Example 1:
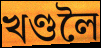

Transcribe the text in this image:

খণ্ডলৈ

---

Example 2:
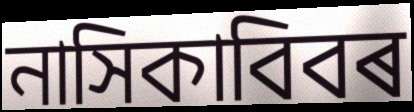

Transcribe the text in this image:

নাসিকাবিবৰ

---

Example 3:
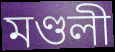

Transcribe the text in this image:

মণ্ডলী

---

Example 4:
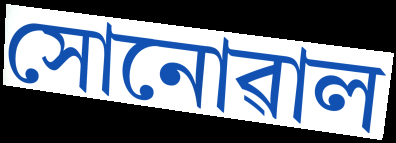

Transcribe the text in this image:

সোনোৱাল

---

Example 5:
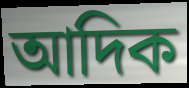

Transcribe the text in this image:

আদিক